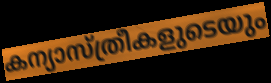
കന്യാസ്ത്രീകളുടെയും